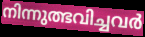
നിന്നുത്ഭവിച്ചവർ